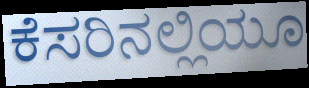
ಕೆಸರಿನಲ್ಲಿಯೂ